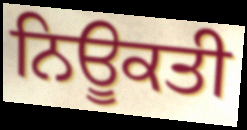
ਨਿਊਕਤੀ